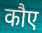
कौए